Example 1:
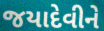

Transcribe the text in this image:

જયાદેવીને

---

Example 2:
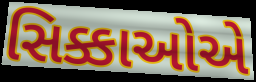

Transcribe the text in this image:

સિક્કાઓએ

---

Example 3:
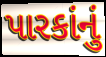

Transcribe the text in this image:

પારકાંનું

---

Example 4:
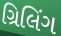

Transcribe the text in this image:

ગ્રિલિંગ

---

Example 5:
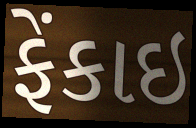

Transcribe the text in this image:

ફેંકાઇ